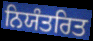
ਨਿਯੰਤਰਿਤ